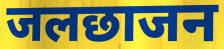
जलछाजन